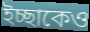
ইচ্ছাকেও